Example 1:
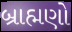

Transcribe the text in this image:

બ્રાહ્મણો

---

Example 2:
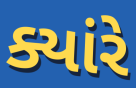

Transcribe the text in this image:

ક્યાંરે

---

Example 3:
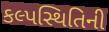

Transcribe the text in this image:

કલ્પસ્થિતિની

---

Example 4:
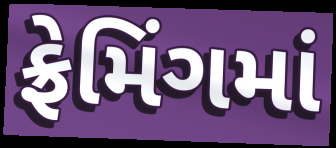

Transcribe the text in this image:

ફ્રેમિંગમાં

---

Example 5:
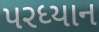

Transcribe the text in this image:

પરધ્યાન